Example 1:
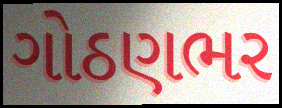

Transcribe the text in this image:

ગોઠણભર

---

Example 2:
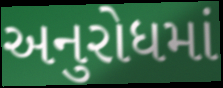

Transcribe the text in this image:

અનુરોધમાં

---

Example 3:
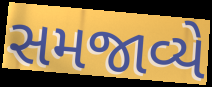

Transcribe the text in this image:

સમજાવ્યે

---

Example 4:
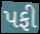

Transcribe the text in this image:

પફી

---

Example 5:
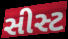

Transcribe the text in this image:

સીસ્ટ